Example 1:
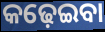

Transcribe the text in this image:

କଢ଼େଇବା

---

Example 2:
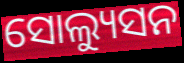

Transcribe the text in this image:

ସୋଲ୍ୟୁସନ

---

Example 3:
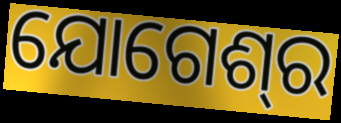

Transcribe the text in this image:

ଯୋଗେଶ୍‍ର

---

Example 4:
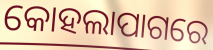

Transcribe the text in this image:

କୋହଲାପାଗରେ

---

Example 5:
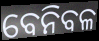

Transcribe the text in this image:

ବେନିବଳ